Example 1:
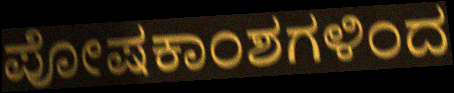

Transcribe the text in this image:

ಪೋಷಕಾಂಶಗಳಿಂದ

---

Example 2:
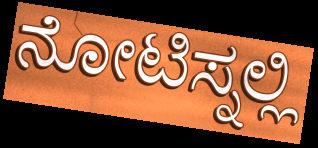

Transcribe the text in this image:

ನೋಟಿಸ್ನಲ್ಲಿ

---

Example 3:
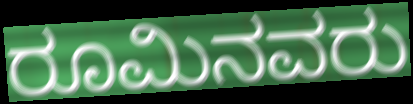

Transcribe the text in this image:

ರೂಮಿನವರು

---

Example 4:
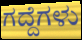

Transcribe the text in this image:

ಗದ್ದೆಗಳು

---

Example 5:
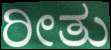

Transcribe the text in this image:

ರೀತು